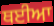
ਥਈਆ